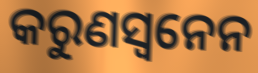
କରୁଣସ୍ଵନେନ